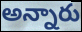
అన్నారు